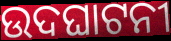
ଉଦଘାଟନୀ